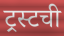
ट्रस्टची